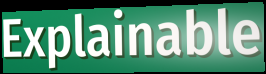
Explainable